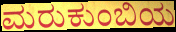
ಮರುಕುಂಬಿಯ